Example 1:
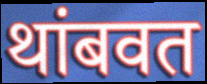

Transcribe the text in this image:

थांबवत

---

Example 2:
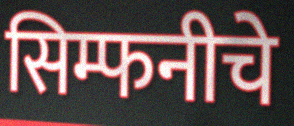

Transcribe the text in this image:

सिम्फनीचे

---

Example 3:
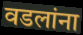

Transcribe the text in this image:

वडलांना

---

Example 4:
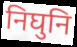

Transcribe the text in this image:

निघुनि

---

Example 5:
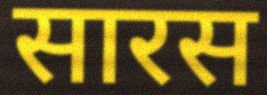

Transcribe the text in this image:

सारस